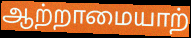
ஆற்றாமையாற்